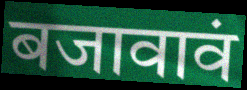
बजावावं